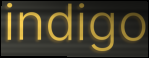
indigo